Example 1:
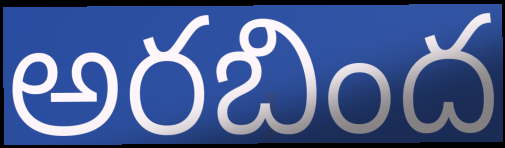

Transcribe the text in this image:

అరబింద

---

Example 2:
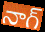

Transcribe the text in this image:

నాగ్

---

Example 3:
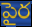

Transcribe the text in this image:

పైర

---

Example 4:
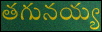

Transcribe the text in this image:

తగునయ్య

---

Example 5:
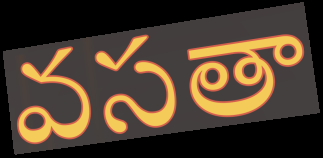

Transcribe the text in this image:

వసతా